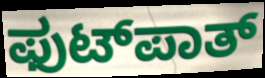
ಫುಟ್‍ಪಾತ್